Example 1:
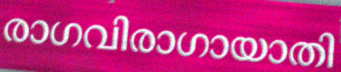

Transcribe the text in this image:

രാഗവിരാഗായാതി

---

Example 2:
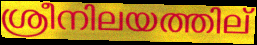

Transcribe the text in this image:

ശ്രീനിലയത്തില്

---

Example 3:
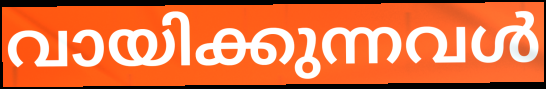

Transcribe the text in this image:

വായിക്കുന്നവൾ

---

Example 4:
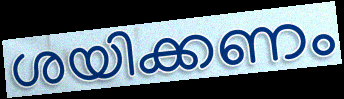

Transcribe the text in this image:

ശയിക്കണം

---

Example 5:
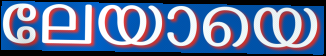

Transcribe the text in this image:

ലേയായെ